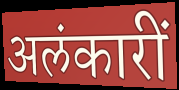
अलंकारीं